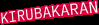
KIRUBAKARAN